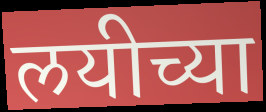
लयीच्या